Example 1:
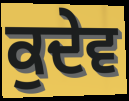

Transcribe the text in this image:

ਕੁਦੇਵ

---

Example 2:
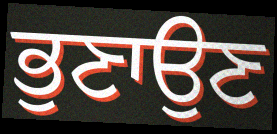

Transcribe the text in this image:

ਭੁਣਾਉਣ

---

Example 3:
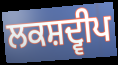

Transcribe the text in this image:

ਲਕਸ਼ਦ੍ਵੀਪ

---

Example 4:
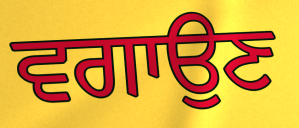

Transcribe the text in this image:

ਵਗਾਉਣ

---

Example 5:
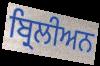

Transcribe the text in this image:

ਬ੍ਰਿਲੀਅਨ